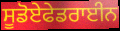
ਸੂਡੋਏਫੇਡਰਾਈਨ